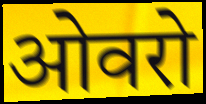
ओवरो